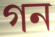
গন